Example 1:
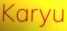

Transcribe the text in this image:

Karyu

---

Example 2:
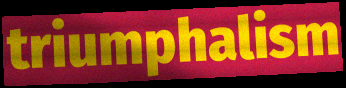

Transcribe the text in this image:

triumphalism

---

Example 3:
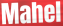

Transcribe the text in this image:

Mahel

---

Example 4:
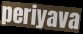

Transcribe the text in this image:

periyava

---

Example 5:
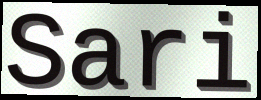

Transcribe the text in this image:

Sari